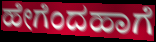
ಹೇಗೆಂದಹಾಗೆ